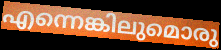
എന്നെങ്കിലുമൊരു